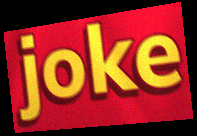
joke